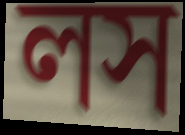
লস